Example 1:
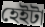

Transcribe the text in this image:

হেইটা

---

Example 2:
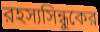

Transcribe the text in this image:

রহস্যসিন্ধুকের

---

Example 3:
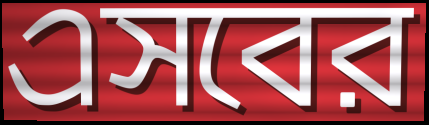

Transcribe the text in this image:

এসবের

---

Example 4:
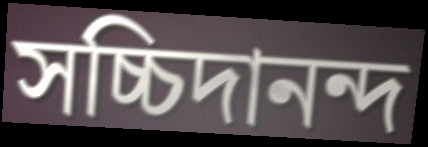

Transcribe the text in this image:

সচ্চিদানন্দ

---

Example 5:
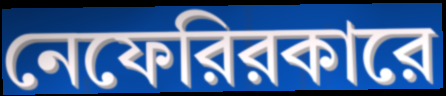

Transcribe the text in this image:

নেফেরিরকারে